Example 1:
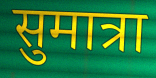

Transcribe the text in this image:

सुमात्रा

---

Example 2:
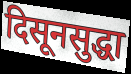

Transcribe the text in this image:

दिसूनसुद्धा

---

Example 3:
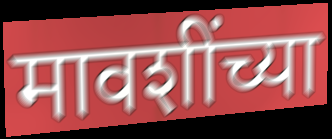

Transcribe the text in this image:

मावशींच्या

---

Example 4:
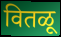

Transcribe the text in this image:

वितळू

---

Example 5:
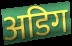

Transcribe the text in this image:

अडिग